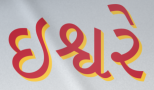
ઇશ્વરે